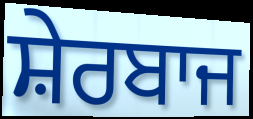
ਸ਼ੇਰਬਾਜ